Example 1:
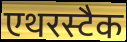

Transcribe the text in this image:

एथरस्टैक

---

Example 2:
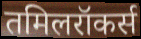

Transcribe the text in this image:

तमिलरॉकर्स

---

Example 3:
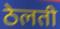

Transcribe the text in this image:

ठेलती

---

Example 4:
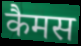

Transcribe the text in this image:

कैमस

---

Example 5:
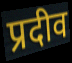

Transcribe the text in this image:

प्रदीव